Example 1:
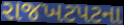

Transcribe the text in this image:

રાજખટપટના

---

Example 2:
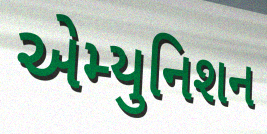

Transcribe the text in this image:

એમ્યુનિશન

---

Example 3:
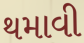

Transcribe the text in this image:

થમાવી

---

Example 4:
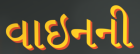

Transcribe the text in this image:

વાઇનની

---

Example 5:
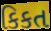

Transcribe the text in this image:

કિકત